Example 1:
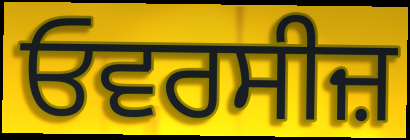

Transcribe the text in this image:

ਓਵਰਸੀਜ਼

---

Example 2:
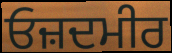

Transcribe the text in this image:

ਓਜ਼ਦਮੀਰ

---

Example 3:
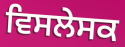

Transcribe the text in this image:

ਵਿਸਲੇਸਕ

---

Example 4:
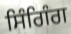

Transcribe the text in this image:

ਸਿੰਗਿੰਗ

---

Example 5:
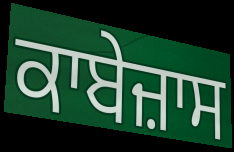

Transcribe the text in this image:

ਕਾਬੇਜ਼ਾਸ